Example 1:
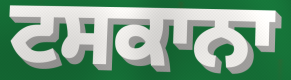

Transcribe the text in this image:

ਟਸਕਾਨਾ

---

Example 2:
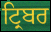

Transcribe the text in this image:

ਟ੍ਰਿਬਰ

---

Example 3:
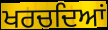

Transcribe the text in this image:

ਖਰਚਦਿਆਂ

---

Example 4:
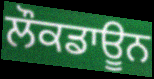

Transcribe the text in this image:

ਲੌਕਡਾਊਨ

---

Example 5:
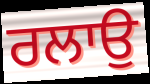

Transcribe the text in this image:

ਰਲਾਉ